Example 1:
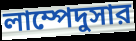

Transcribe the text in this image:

লাম্পেদুসার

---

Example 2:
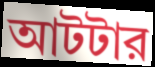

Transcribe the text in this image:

আটটার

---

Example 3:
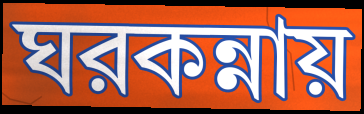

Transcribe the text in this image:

ঘরকন্নায়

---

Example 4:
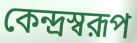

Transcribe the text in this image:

কেন্দ্রস্বরূপ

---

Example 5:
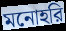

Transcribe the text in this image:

মনোহরি